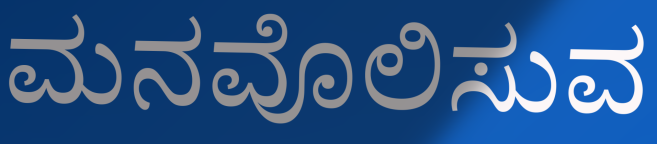
ಮನವೊಲಿಸುವ